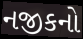
નજીકનો